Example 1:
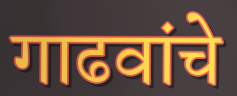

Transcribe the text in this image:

गाढवांचे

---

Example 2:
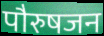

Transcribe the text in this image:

पौरुषजन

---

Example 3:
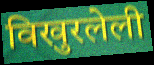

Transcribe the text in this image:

विखुरलेली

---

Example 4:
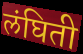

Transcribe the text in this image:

लंघिती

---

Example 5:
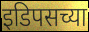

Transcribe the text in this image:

इडिपसच्या